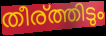
തീര്ത്തിടും